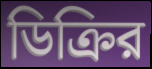
ডিক্রির